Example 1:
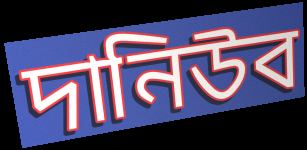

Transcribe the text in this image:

দানিউব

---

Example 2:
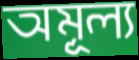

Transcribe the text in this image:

অমূল্য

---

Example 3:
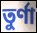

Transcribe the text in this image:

তুর্ণা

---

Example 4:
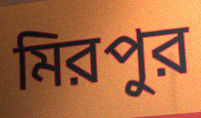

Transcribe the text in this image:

মিরপুর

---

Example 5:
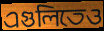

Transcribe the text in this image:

এগুলিতেও